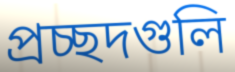
প্রচ্ছদগুলি